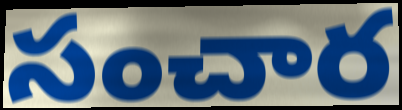
సంచార